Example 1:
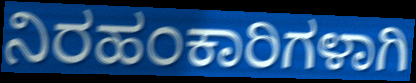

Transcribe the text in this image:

ನಿರಹಂಕಾರಿಗಳಾಗಿ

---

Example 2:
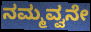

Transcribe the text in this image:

ನಮ್ಮವ್ವನೇ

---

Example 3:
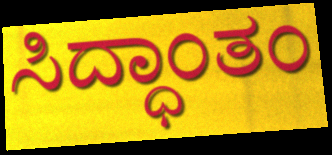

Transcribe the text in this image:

ಸಿದ್ಧಾಂತಂ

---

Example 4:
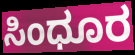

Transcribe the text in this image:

ಸಿಂಧೂರ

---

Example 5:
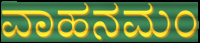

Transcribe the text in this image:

ವಾಹನಮಂ